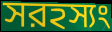
সরহস্যং